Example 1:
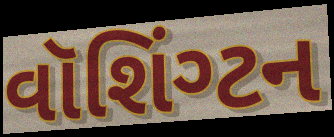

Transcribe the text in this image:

વૉશિંગ્ટન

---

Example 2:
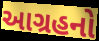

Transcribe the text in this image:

આગ્રહનો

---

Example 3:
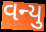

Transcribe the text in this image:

વન્યુ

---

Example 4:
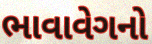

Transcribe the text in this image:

ભાવાવેગનો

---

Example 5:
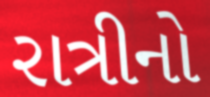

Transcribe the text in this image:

રાત્રીનો